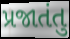
પ્રજાતંતુ